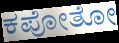
ಕಪೋತೋ